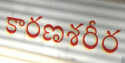
కారణశరీర